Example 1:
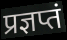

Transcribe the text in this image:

प्रज्ञप्तं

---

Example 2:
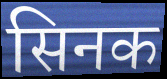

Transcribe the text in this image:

सिनक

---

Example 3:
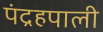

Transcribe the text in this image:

पंद्रहपाली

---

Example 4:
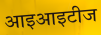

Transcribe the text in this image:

आइआइटीज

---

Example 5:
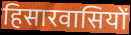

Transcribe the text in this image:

हिसारवासियों